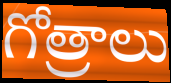
గోత్రాలు